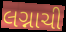
લગ્નાચી